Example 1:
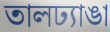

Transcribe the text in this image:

তালঢ্যাঙা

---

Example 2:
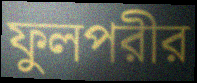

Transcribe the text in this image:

ফুলপরীর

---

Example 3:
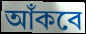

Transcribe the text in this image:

আঁকবে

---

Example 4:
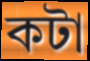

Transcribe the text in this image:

কটা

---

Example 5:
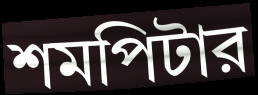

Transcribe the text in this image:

শমপিটার